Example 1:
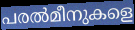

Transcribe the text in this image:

പരൽമീനുകളെ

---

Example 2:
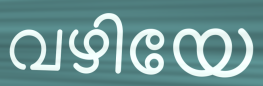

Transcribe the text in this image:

വഴിയേ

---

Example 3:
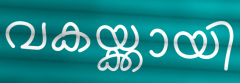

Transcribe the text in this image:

വകയ്ക്കായി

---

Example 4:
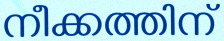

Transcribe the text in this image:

നീക്കത്തിന്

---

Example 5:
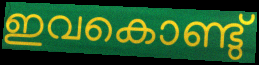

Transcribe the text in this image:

ഇവകൊണ്ടു്